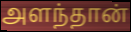
அளந்தான்